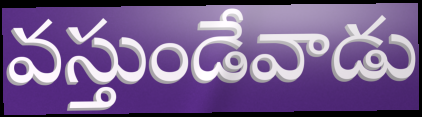
వస్తుండేవాడు